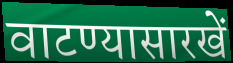
वाटण्यासारखें